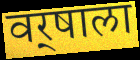
वर्षाला